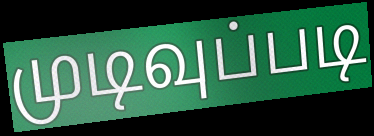
முடிவுப்படி